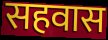
सहवास